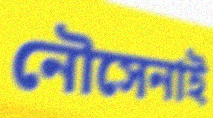
নৌসেনাই